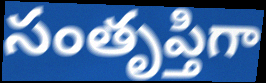
సంతృప్తిగా